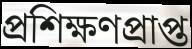
প্ৰশিক্ষণপ্ৰাপ্ত